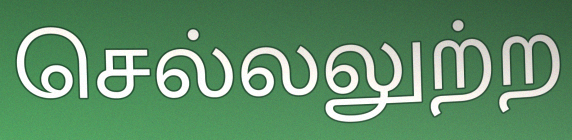
செல்லலுற்ற